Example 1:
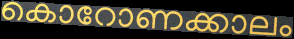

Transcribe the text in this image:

കൊറോണക്കാലം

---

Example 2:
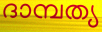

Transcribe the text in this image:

ദാമ്പത്യ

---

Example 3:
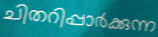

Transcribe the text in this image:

ചിതറിപ്പാർക്കുന്ന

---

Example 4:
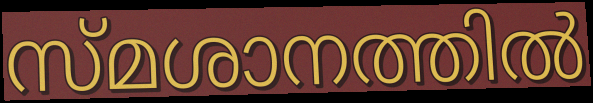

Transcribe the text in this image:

സ്മശാനത്തിൽ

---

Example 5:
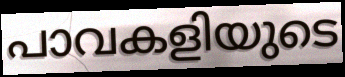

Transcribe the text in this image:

പാവകളിയുടെ